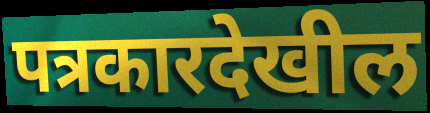
पत्रकारदेखील